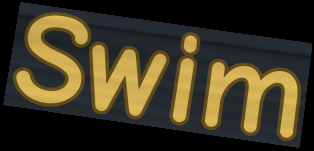
Swim